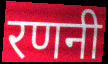
रणनी